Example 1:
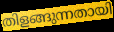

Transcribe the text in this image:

തിളങ്ങുന്നതായി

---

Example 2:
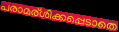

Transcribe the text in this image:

പരാമര്ശിക്കപ്പെടാതെ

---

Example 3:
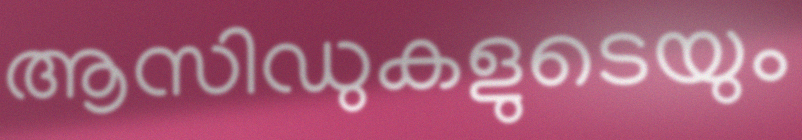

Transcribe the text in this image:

ആസിഡുകളുടെയും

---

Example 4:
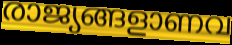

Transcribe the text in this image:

രാജ്യങ്ങളാണവ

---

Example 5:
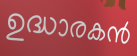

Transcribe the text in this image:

ഉദ്ധാരകൻ